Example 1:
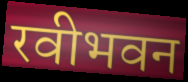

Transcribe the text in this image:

रवीभवन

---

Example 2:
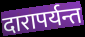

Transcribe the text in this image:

दारापर्यन्त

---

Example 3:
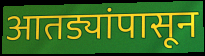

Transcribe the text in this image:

आतड्यांपासून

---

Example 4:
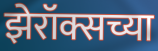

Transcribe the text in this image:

झेरॉक्सच्या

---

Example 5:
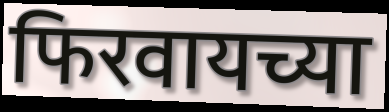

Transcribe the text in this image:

फिरवायच्या